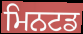
ਮਿਨਟਡ